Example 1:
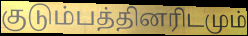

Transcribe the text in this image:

குடும்பத்தினரிடமும்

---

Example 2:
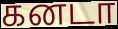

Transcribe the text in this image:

கனடா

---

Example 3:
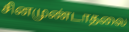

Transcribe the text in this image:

சினமுண்டாதலை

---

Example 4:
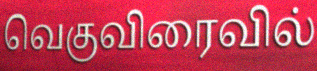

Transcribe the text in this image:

வெகுவிரைவில்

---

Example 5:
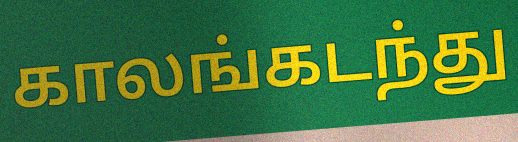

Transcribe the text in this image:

காலங்கடந்து